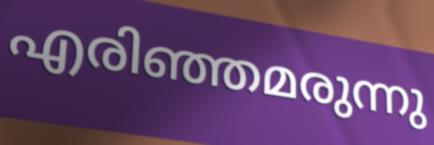
എരിഞ്ഞമരുന്നു